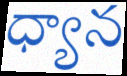
ధ్యాన